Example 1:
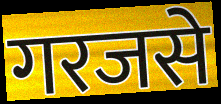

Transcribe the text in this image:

गरजसे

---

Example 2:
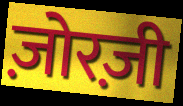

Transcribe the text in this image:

ज़ोरज़ी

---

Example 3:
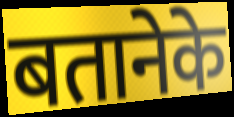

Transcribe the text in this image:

बतानेके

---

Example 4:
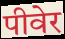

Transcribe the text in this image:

पीवेर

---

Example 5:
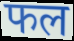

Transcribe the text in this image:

फल